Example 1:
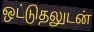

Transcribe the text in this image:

ஒட்டுதலுடன்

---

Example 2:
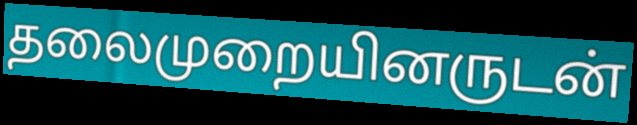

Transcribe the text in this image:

தலைமுறையினருடன்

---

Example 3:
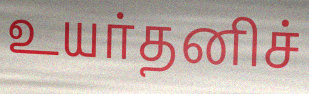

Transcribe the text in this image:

உயர்தனிச்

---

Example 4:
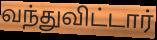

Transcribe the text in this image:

வந்துவிட்டார்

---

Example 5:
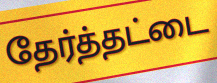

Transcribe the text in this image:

தேர்த்தட்டை